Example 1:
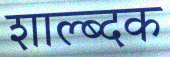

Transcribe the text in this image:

शाल्ब्दक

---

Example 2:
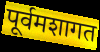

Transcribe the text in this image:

पूर्वमशागत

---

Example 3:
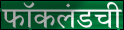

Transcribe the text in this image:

फॉकलंडची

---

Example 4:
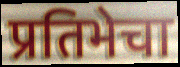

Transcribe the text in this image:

प्रतिभेचा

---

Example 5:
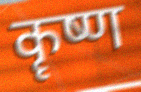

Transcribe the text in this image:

कॄष्ण